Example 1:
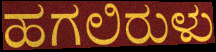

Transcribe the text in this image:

ಹಗಲಿರುಳು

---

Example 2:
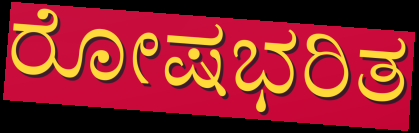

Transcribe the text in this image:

ರೋಷಭರಿತ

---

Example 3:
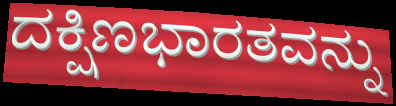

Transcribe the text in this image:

ದಕ್ಷಿಣಭಾರತವನ್ನು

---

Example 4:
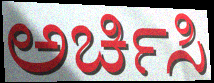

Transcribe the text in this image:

ಅರ್ಚಿಸಿ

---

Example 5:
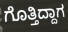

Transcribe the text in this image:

ಗೊತ್ತಿದ್ದಾಗ